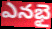
ఎనభై